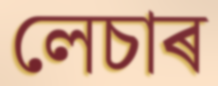
লেচাৰ